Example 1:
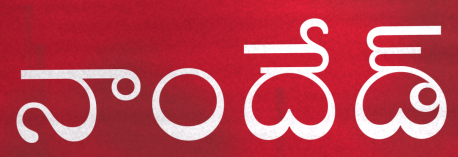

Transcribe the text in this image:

నాందేడ్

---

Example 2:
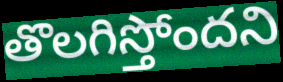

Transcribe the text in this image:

తొలగిస్తోందని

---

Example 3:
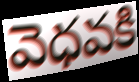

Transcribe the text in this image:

వెధవకి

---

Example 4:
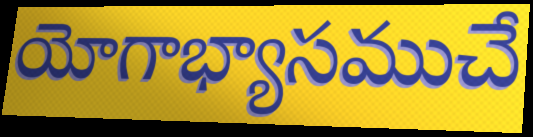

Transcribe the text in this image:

యోగాభ్యాసముచే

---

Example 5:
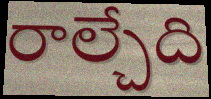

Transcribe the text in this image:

రాల్చేది